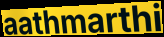
aathmarthi